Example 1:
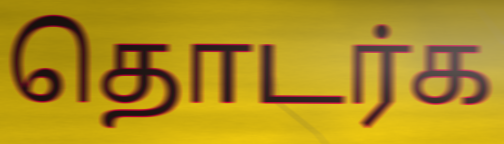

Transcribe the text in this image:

தொடர்க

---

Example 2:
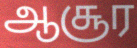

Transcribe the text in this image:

ஆசூர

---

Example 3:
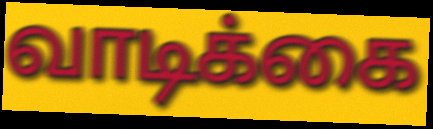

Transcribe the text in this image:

வாடிக்கை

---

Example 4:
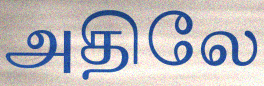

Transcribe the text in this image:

அதிலே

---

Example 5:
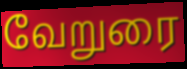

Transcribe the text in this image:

வேறுரை